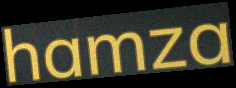
hamza